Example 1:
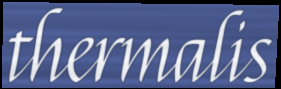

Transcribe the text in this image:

thermalis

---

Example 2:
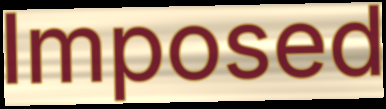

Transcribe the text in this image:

Imposed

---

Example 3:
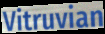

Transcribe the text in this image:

Vitruvian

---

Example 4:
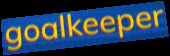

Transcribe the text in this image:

goalkeeper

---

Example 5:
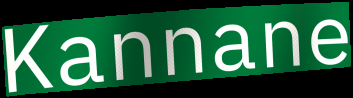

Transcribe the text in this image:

Kannane